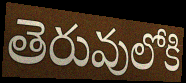
తెరువులోకి